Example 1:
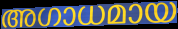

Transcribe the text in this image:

അഗാധമായ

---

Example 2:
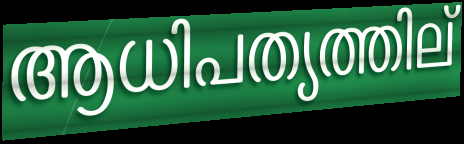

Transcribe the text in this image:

ആധിപത്യത്തില്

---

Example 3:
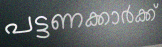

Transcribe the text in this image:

പട്ടണക്കാർക്ക്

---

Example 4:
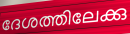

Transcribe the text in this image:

ദേശത്തിലേക്കു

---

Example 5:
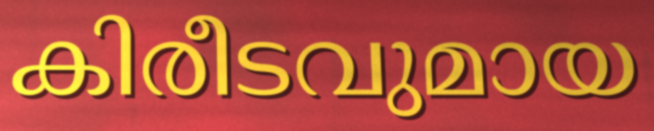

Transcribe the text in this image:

കിരീടവുമായ